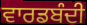
ਵਾਰਡਬੰਦੀ